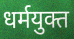
धर्मयुक्त